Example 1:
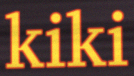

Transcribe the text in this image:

kiki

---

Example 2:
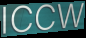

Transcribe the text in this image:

ICCW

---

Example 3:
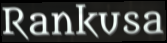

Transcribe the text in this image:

Rankusa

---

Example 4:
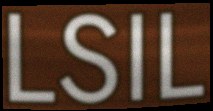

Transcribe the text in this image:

LSIL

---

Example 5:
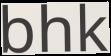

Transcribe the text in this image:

bhk